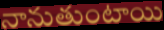
నానుతుంటాయి